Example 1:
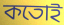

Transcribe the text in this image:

কতোই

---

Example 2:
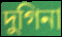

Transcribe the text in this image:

দুগিনা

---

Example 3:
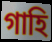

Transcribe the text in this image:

গাহি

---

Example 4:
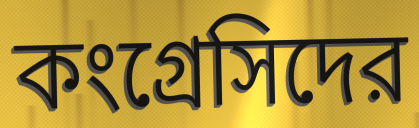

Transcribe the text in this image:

কংগ্রেসিদের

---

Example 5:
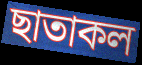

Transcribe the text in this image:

ছাতাকল